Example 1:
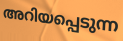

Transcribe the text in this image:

അറിയപ്പെടുന്ന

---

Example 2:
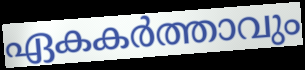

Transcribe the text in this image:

ഏകകർത്താവും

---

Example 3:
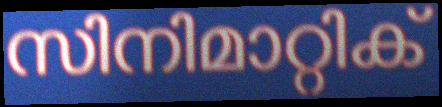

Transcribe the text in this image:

സിനിമാറ്റിക്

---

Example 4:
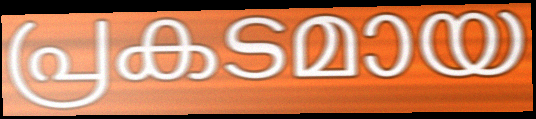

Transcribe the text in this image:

പ്രകടമായ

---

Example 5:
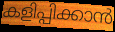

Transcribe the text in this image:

കളിപ്പിക്കാൻ